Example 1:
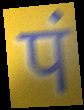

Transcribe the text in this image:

पं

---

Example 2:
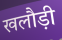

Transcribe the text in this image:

खलौड़ी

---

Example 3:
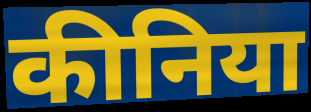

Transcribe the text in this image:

कीनिया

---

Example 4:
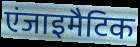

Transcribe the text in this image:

एंजाइमैटिक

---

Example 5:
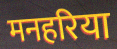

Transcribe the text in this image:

मनहरिया